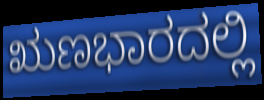
ಋಣಭಾರದಲ್ಲಿ